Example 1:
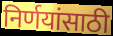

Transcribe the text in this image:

निर्णयांसाठी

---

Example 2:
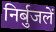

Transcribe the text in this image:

निर्बुजलें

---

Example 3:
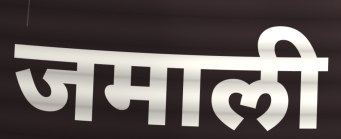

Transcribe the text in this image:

जमाली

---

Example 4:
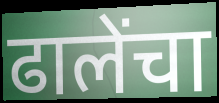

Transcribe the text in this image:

ढालेंचा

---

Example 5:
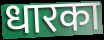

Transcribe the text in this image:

धारका